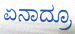
ಏನಾದ್ರೂ